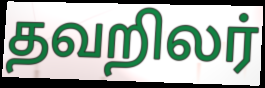
தவறிலர்